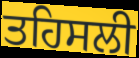
ਤਹਿਸਲੀ